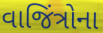
વાજિંત્રોના